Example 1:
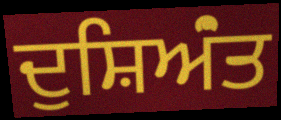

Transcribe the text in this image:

ਦੁਸ਼ਿਅਂੰਤ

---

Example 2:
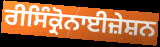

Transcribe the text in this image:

ਰੀਸਿੰਕ੍ਰੋਨਾਈਜ਼ੇਸ਼ਨ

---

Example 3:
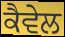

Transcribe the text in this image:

ਕੈਵੇਲ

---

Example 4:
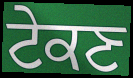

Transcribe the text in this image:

ਟੇਕਣ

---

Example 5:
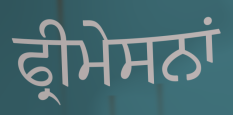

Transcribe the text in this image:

ਫ੍ਰੀਮੇਸਨਾਂ